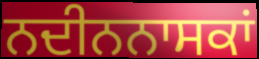
ਨਦੀਨਨਾਸਕਾਂ